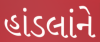
હાંડલાંને